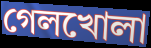
গেলখোলা